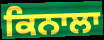
ਕਿਨਾਲਾ